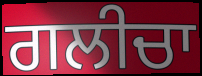
ਗਲੀਚਾ